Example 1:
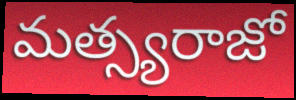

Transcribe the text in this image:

మత్స్యరాజో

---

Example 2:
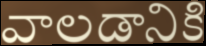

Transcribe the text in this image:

వాలడానికి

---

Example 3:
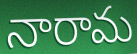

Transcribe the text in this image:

నారామ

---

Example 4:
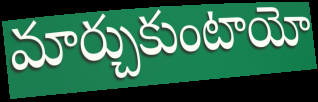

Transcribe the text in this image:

మార్చుకుంటాయో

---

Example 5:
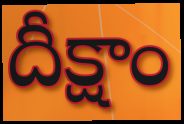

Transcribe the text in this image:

దీక్షాం